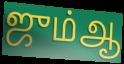
ஜும்ஆ